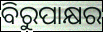
ବିରୁପାକ୍ଷର